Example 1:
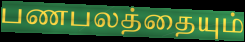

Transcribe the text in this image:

பணபலத்தையும்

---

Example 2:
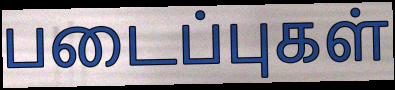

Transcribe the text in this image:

படைப்புகள்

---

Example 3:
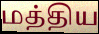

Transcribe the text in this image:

மத்திய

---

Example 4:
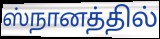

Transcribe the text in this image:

ஸ்நானத்தில்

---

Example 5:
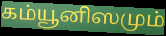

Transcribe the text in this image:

கம்யூனிஸமும்